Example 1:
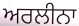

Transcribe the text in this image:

ਅਰਲੀਨਾ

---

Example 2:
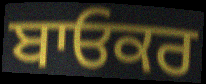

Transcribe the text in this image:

ਬਾਓਕਰ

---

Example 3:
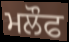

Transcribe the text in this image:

ਮਲੌਫ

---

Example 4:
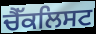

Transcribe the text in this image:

ਚੈੱਕਲਿਸਟ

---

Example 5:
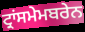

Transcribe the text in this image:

ਟ੍ਰਾਂਸਮੇਮਬਰੇਨ